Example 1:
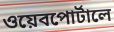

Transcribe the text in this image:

ওয়েবপোর্টালে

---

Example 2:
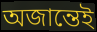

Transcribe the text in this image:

অজান্তেই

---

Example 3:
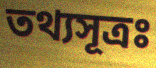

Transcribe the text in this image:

তথ্যসূত্রঃ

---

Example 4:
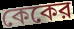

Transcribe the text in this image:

কেকের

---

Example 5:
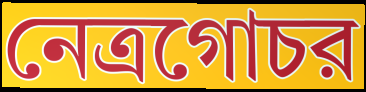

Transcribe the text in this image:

নেত্রগোচর